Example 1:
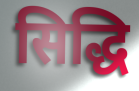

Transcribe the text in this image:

सिद्धि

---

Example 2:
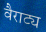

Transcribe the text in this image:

वैराट्य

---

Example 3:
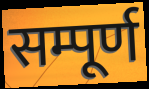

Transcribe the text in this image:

सम्‍पूर्ण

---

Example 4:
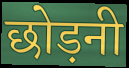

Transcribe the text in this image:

छोड़नी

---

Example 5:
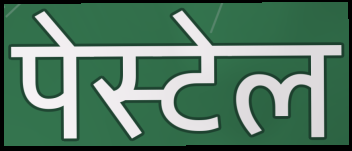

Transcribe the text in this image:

पेस्टेल